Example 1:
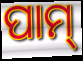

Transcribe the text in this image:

ପାମ୍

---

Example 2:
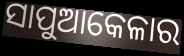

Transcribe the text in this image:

ସାପୁଆକେଳାର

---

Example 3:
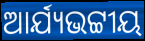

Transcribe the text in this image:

ଆର୍ଯ୍ୟଭଟ୍ଟୀୟ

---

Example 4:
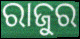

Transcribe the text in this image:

ରାଜୁର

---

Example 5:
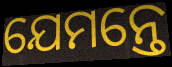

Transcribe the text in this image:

ଯେମନ୍ତେ